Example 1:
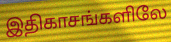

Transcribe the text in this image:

இதிகாசங்களிலே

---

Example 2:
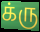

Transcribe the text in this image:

க்ரு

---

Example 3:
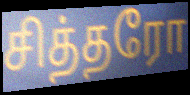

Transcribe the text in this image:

சித்தரோ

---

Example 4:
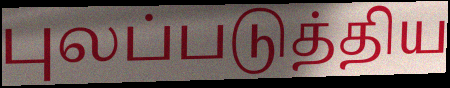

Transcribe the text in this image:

புலப்படுத்திய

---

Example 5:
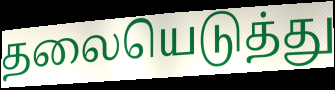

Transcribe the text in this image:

தலையெடுத்து